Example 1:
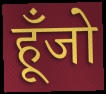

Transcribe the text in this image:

हूँजो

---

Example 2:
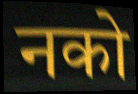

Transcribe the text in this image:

नको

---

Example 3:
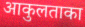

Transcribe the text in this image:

आकुलताका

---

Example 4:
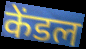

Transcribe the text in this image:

केंडल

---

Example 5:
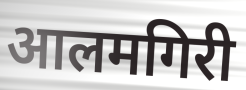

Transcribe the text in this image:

आलमगिरी